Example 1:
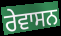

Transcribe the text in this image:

ਰੇਵਾਸਨ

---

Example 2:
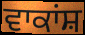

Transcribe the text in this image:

ਵਾਕਾਂਸ਼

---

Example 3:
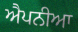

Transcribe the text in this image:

ਐਪਨੀਆ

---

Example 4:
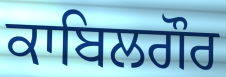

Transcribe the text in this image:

ਕਾਬਿਲਗੌਰ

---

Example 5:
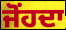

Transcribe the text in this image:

ਜੋਂਹਦਾ